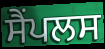
ਸੈਂਪਲਸ